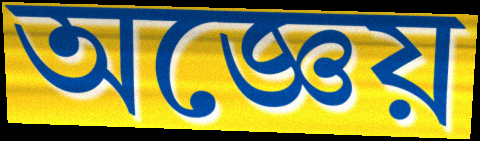
অজ্ঞেয়